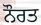
ਨੌਰਤ